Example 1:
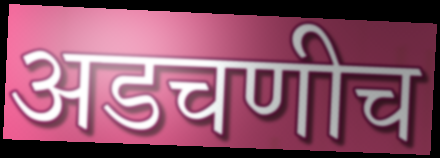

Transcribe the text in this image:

अडचणीच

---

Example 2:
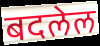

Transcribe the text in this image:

बदलेल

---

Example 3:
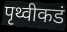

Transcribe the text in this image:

पृथ्वीकडं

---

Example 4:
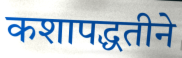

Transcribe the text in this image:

कशापद्धतीने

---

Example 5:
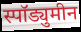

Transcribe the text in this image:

स्पॉड्युमीन